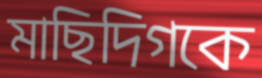
মাছিদিগকে